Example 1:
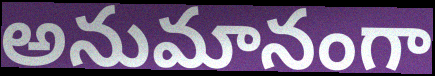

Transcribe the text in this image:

అనుమానంగా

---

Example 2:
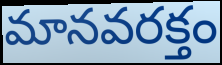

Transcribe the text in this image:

మానవరక్తం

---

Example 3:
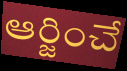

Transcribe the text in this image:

ఆర్జించే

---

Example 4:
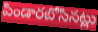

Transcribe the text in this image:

పిండారబోసినట్లు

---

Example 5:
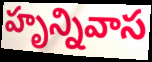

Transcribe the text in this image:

హృన్నివాస